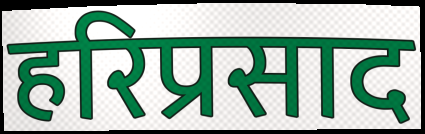
हरिप्रसाद